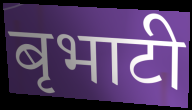
बृभाटी